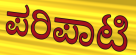
ಪರಿಪಾಟಿ